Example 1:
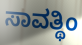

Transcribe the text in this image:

ಸಾವತ್ಥಿಂ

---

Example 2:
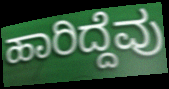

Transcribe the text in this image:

ಹಾರಿದ್ದೆವು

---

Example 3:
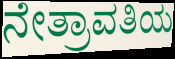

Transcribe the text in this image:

ನೇತ್ರಾವತಿಯ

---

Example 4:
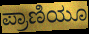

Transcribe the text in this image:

ಪ್ರಾಣಿಯೂ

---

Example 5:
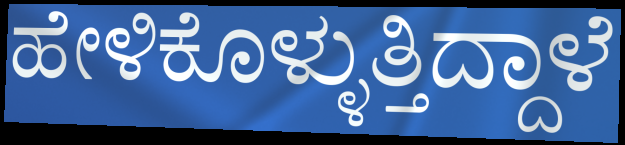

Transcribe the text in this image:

ಹೇಳಿಕೊಳ್ಳುತ್ತಿದ್ದಾಳೆ